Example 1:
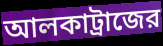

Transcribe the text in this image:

আলকাট্রাজের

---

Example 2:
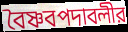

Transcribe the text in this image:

বৈষ্ণবপদাবলীর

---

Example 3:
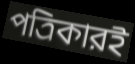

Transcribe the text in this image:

পত্রিকারই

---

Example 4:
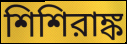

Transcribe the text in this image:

শিশিরাঙ্ক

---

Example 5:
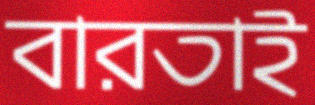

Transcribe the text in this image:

বারতাই